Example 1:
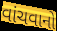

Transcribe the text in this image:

વાંચવાનો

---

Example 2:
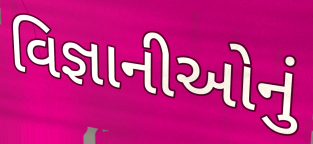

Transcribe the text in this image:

વિજ્ઞાનીઓનું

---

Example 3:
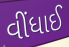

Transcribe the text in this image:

વીંધાઈ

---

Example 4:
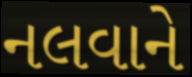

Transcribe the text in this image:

નલવાને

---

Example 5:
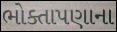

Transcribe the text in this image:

ભોક્તાપણાના